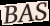
BAS